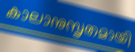
കാലാനുസൃതമായി